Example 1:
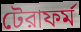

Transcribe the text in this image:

টেরাফর্ম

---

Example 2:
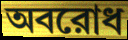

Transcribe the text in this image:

অবরোধ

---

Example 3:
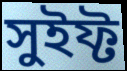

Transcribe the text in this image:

সুইফ্ট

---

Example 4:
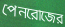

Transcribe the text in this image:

পেনরোজের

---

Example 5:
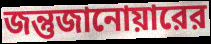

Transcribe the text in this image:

জন্তুজানোয়ারের